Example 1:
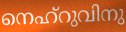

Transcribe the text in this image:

നെഹ്റുവിനു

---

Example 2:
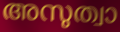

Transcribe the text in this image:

അസുത്വാ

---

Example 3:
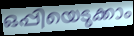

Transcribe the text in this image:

ഒപ്പിയെടുക്കാം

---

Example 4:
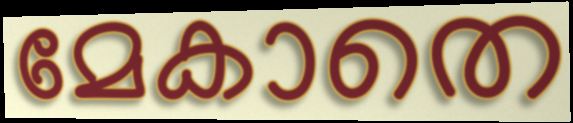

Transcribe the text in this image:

മേകാതെ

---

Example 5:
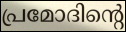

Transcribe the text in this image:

പ്രമോദിന്റെ